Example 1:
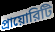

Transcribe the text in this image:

প্রায়োরিটি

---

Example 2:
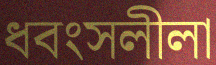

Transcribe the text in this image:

ধবংসলীলা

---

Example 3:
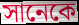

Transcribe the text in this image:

সানেকে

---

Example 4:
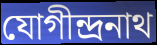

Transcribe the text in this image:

যোগীন্দ্রনাথ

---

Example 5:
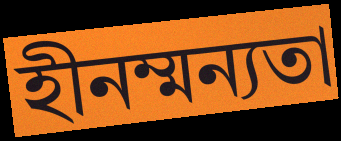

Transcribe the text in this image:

হীনম্মন্যতা